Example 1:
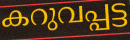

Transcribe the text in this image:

കറുവപ്പട്ട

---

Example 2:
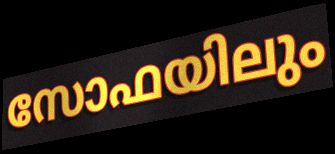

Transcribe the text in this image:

സോഫയിലും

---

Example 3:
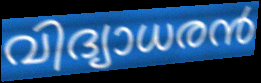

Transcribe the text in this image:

വിദ്യാധരൻ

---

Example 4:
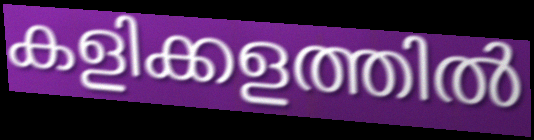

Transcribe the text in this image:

കളിക്കളത്തിൽ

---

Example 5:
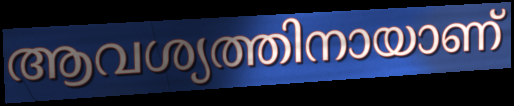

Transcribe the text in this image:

ആവശ്യത്തിനായാണ്